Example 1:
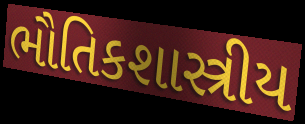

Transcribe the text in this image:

ભૌતિકશાસ્ત્રીય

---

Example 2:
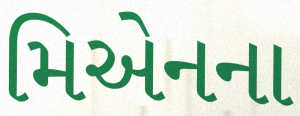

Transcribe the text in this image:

મિએનના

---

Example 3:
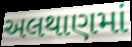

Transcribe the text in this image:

અલથાણમાં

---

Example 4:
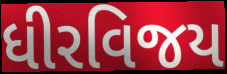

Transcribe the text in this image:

ધીરવિજય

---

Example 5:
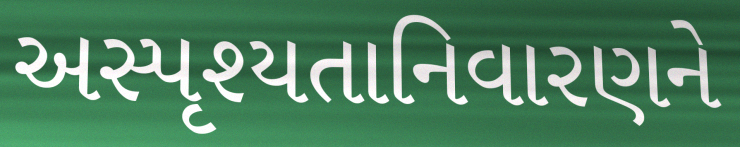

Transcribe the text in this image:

અસ્પૃશ્યતાનિવારણને